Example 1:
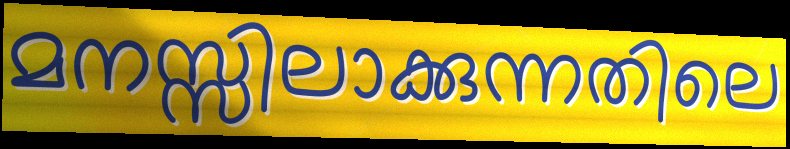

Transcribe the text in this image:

മനസ്സിലാക്കുന്നതിലെ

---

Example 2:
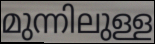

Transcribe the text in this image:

മുന്നിലുള്ള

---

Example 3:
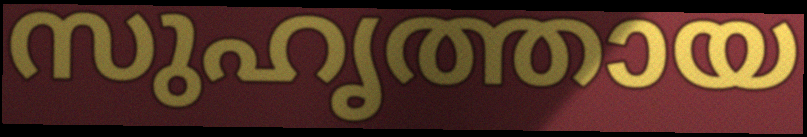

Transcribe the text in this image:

സുഹൃത്തായ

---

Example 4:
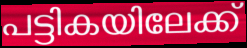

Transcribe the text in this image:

പട്ടികയിലേക്ക്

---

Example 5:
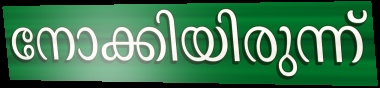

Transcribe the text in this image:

നോക്കിയിരുന്ന്